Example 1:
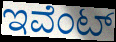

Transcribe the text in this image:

ಇವೆಂಟ್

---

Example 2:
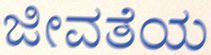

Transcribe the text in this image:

ಜೀವತೆಯ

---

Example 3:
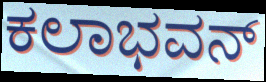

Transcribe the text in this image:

ಕಲಾಭವನ್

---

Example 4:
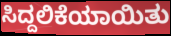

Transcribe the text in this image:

ಸಿದ್ದಲಿಕೆಯಾಯಿತು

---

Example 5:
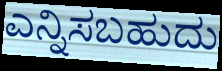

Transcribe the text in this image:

ಎನ್ನಿಸಬಹುದು